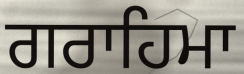
ਗਰਾਹਿਮਾ